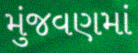
મુંજવણમાં